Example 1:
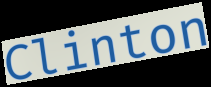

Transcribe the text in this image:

Clinton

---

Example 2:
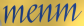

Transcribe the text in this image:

menm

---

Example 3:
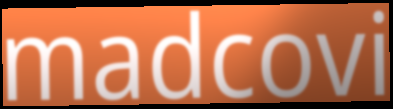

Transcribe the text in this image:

madcovi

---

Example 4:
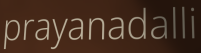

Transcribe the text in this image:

prayanadalli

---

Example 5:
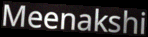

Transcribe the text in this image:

Meenakshi